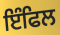
ਇੰਫਿਲ